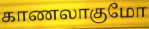
காணலாகுமோ